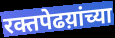
रक्तपेढय़ांच्या